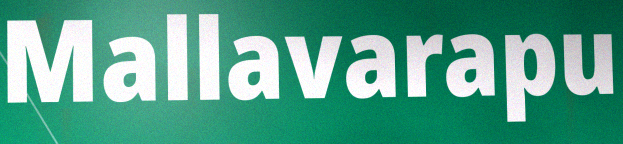
Mallavarapu